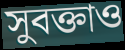
সুবক্তাও